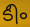
ടീം